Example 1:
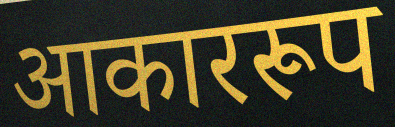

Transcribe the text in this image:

आकाररूप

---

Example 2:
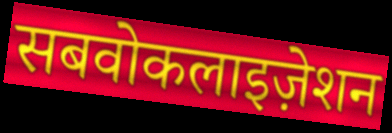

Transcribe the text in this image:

सबवोकलाइज़ेशन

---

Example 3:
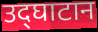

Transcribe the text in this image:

उद्घाटान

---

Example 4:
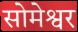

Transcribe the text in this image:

सोमेश्वर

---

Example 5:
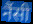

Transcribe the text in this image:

नैंसी